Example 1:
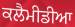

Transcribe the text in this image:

ਕਲੈਮੀਡੀਆ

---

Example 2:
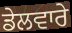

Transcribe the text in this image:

ਡੇਲਵਾਰੇ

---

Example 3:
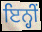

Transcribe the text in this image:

ਇਨ੍ਹੀਂ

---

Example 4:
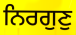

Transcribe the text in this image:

ਨਿਰਗੁਣੁ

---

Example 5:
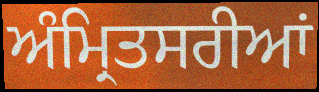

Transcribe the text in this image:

ਅੰਮ੍ਰਿਤਸਰੀਆਂ